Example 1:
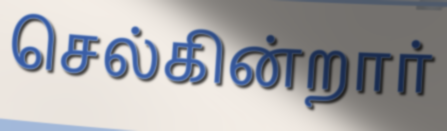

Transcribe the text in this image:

செல்கின்றார்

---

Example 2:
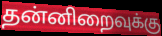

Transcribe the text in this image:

தன்னிறைவுக்கு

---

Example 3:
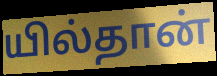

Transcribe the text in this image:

யில்தான்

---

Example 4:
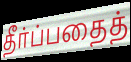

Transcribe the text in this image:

தீர்ப்பதைத்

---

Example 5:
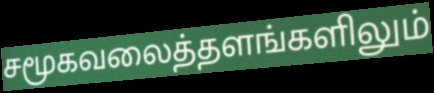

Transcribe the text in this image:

சமூகவலைத்தளங்களிலும்